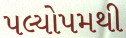
પલ્યોપમથી